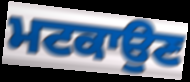
ਮਟਕਾਉਣ